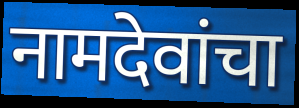
नामदेवांचा